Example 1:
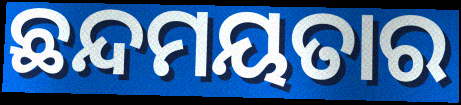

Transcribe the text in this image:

ଛନ୍ଦମୟତାର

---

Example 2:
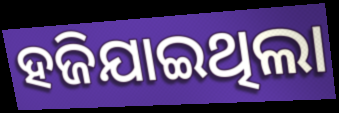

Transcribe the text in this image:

ହଜିଯାଇଥିଲା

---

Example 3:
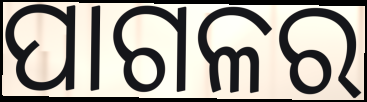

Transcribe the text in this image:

ପାଗଳର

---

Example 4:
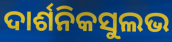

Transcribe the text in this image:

ଦାର୍ଶନିକସୁଲଭ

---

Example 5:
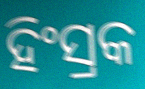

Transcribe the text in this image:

ହିଂସ୍ରକ